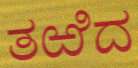
ತಱಿದ